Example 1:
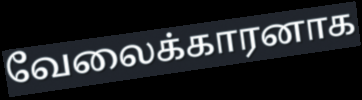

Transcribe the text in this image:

வேலைக்காரனாக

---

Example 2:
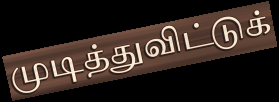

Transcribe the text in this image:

முடித்துவிட்டுக்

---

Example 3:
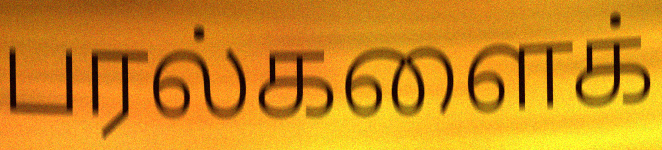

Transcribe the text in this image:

பரல்களைக்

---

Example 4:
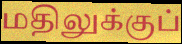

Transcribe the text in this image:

மதிலுக்குப்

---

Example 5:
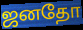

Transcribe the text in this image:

ஜனதோ